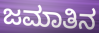
ಜಮಾತಿನ